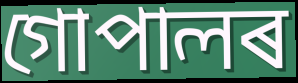
গোপালৰ